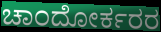
ಚಾಂದೋರ್ಕರರ